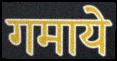
गमाये